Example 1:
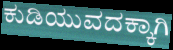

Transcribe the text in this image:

ಕುಡಿಯುವದಕ್ಕಾಗಿ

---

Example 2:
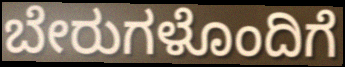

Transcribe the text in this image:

ಬೇರುಗಳೊಂದಿಗೆ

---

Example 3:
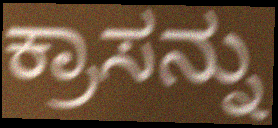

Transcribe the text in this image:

ಕ್ರಾಸನ್ನು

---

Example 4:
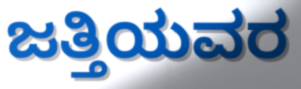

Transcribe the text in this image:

ಜತ್ತಿಯವರ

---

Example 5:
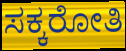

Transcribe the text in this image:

ಸಕ್ಕರೋತಿ